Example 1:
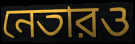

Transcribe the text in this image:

নেতারও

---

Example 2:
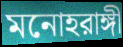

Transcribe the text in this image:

মনোহরাঙ্গী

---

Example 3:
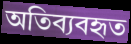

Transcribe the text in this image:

অতিব্যবহৃত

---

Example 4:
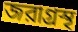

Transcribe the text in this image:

জরাগ্রস্থ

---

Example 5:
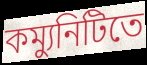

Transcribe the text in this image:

কম্যুনিটিতে